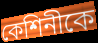
কেশিনীকে